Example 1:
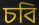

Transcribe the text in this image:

চবি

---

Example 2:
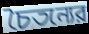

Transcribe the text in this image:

চৈতন্যের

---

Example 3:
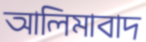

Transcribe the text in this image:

আলিমাবাদ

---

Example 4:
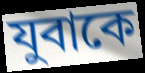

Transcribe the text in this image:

যুবাকে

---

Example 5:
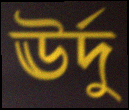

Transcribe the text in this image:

ঊর্দু